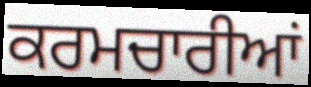
ਕਰਮਚਾਰੀਆਂ